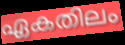
ഏകതിലം